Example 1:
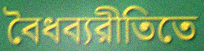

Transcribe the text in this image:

বৈধব্যরীতিতে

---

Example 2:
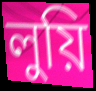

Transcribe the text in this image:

লুয়ি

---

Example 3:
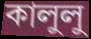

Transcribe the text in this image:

কালুলু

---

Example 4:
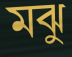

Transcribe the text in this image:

মঝু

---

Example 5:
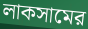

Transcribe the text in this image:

লাকসামের